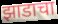
झाडाचा